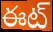
ఈట్